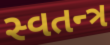
સ્વતન્ત્ર